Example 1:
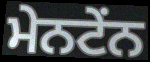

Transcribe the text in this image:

ਮੇਨਟੇਂਨ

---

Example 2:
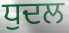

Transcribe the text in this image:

ਧੁਦਲ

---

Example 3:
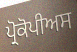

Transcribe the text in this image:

ਪ੍ਰੋਕੋਪੀਅਸ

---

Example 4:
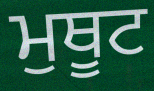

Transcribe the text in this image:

ਮੁਥੂਟ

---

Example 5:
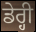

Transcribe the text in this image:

ਡੇਰ੍ਹੀ